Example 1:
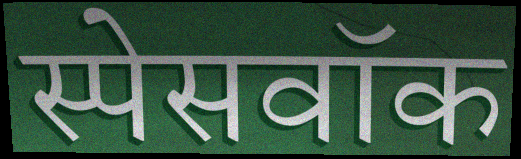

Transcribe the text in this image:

स्पेसवॉक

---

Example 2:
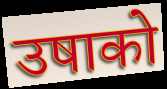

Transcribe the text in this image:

उषाको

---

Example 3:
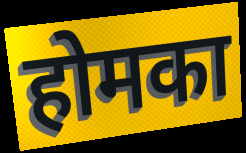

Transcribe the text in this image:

होमका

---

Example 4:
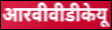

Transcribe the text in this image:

आरवीवीडीकेयू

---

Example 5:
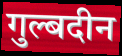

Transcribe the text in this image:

गुल्बदीन